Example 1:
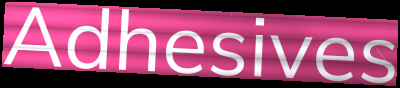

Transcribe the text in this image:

Adhesives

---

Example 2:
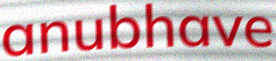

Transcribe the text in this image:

anubhave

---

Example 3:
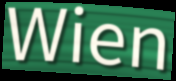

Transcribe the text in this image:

Wien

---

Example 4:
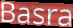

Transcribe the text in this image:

Basra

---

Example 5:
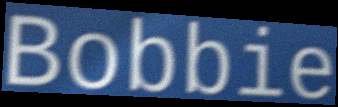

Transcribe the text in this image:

Bobbie